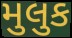
મુલુક